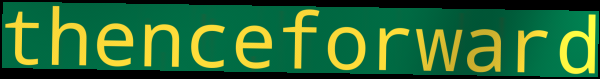
thenceforward